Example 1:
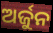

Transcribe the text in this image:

ଅର୍ଜୁନ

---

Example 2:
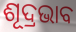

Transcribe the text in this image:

ଶୂଦ୍ରଭାବ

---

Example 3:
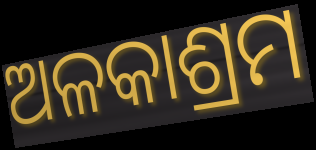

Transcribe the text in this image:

ଅଳକାଶ୍ରମ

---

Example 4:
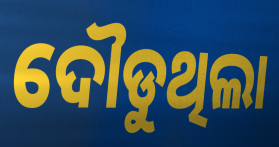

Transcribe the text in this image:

ଦୌଡୁଥିଲା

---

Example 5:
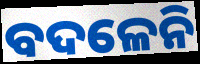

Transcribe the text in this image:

ବଦଳେନି